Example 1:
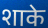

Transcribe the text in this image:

शाके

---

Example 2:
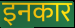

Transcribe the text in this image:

इनकार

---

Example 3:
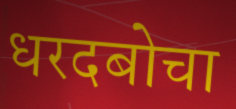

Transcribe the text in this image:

धरदबोचा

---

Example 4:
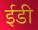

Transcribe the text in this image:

ईडी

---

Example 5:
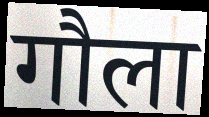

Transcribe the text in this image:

गौला